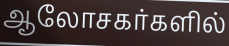
ஆலோசகர்களில்